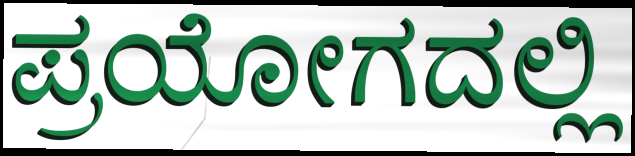
ಪ್ರಯೋಗದಲ್ಲಿ